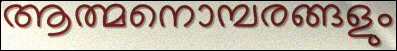
ആത്മനൊമ്പരങ്ങളും